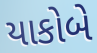
યાકોબે